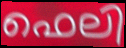
ഫെലി